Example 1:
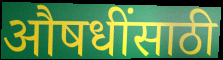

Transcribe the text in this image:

औषधींसाठी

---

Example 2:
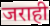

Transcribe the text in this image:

जराही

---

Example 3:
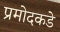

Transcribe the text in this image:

प्रमोदकडे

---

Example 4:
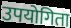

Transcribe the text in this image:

उपयोगिता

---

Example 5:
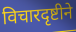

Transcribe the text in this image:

विचारदृष्टीने